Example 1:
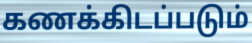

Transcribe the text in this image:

கணக்கிடப்படும்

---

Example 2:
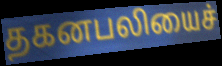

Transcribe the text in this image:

தகனபலியைச்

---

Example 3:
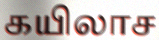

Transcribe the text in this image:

கயிலாச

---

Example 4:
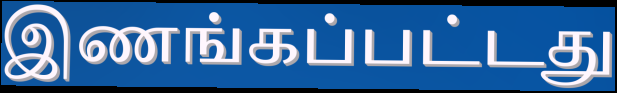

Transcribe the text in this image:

இணங்கப்பட்டது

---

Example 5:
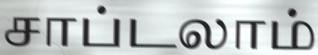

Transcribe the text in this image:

சாப்டலாம்